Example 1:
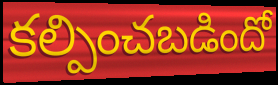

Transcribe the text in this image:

కల్పించబడిందో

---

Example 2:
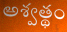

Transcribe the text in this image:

అశ్వత్థం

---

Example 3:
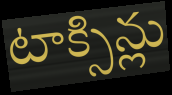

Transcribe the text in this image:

టాక్సిన్లు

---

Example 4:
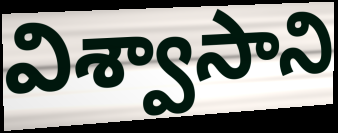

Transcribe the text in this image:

విశ్వాసాని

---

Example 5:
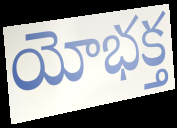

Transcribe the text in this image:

యోభక్త